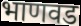
भाणवड